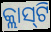
କ୍ଲାସ୍‍ଟି